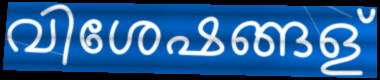
വിശേഷങ്ങള്